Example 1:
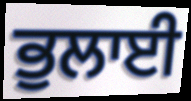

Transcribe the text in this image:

ਭੁਲਾਈ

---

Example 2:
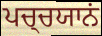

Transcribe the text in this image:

ਪਚ੍ਚਯਾਨਂ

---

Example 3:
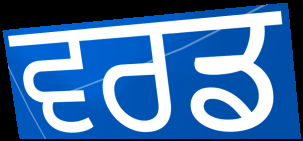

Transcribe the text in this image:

ਵਰਡ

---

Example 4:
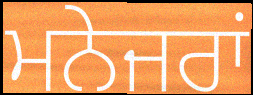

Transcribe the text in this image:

ਮਨੇਜਰਾਂ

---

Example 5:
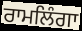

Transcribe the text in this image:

ਰਾਮਲਿੰਗਾ